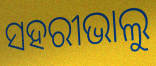
ସହରୀଭାଲୁ